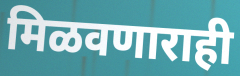
मिळवणाराही